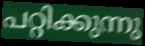
പറ്റിക്കുന്നു